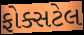
ફોક્સટેલ